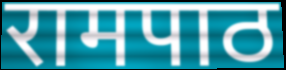
रामपाठ